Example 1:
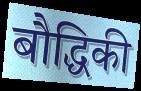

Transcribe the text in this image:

बौद्धिकी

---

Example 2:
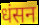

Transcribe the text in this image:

धंसन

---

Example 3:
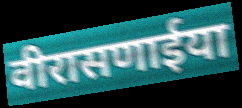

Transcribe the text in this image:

वीरासणाईया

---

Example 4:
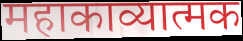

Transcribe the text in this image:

महाकाव्यात्मक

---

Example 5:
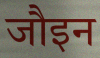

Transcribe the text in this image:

जौइन